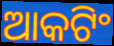
ଆକଟିଂ